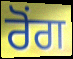
ਰੋਂਗ